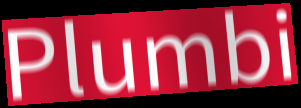
Plumbi